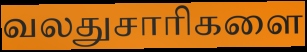
வலதுசாரிகளை